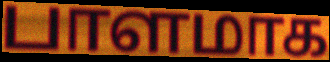
பாளமாக